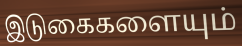
இடுகைகளையும்